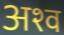
अश्व